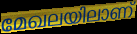
മേഖലയിലാണ്